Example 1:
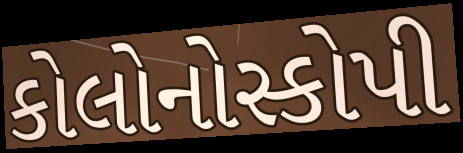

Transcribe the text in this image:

કોલોનોસ્કોપી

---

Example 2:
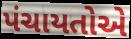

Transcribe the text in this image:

પંચાયતોએ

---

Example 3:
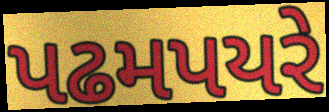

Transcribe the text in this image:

પઢમપયરે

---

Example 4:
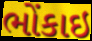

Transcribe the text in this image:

ભોંકાઇ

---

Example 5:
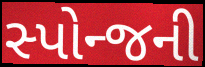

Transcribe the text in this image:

સ્પોન્જની